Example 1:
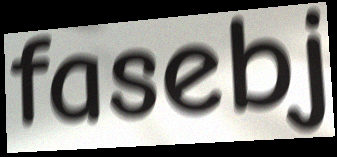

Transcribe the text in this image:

fasebj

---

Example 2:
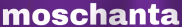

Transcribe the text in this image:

moschanta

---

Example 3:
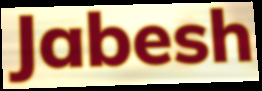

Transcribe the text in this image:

Jabesh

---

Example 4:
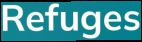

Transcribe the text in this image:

Refuges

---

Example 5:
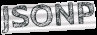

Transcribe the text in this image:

JSONP